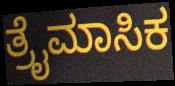
ತ್ರೈಮಾಸಿಕ